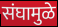
संघामुळे